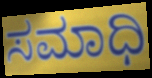
ಸಮಾಧಿ